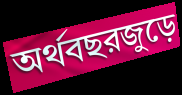
অর্থবছরজুড়ে